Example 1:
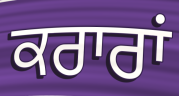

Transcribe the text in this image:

ਕਰਾਰਾਂ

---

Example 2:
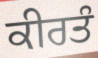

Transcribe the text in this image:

ਕੀਰਤੰ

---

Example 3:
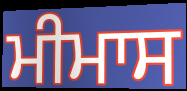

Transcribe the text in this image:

ਮੀਮਾਸ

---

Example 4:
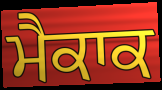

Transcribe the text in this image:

ਮੈਕਾਕ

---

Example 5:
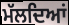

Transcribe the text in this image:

ਮੱਲਦਿਆਂ